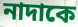
নাদাকে